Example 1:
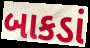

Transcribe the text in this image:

બાકડાં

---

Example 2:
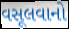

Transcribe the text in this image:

વસૂલવાનો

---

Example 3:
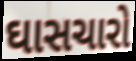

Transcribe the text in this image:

ઘાસચારો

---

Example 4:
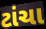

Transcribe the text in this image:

ટાંચા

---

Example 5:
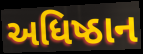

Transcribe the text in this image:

અધિષ્ઠાન